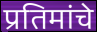
प्रतिमांचे